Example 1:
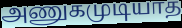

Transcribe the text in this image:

அணுகமுடியாத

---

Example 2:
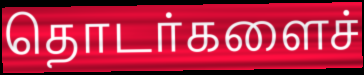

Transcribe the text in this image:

தொடர்களைச்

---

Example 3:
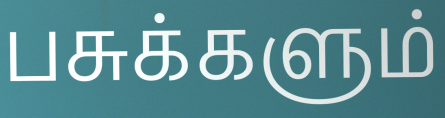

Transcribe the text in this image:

பசுக்களும்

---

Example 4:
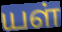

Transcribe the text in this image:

யள்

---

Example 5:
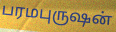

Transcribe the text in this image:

பரமபுருஷன்